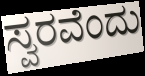
ಸ್ವರವೆಂದು